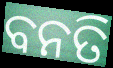
ବନତି